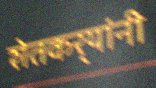
शेतकर्‍यांनी